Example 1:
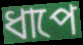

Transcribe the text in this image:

ধাপে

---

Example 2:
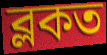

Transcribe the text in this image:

ব্লকত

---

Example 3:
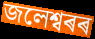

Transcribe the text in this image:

জলেশ্বৰৰ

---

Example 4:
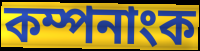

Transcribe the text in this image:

কম্পনাংক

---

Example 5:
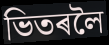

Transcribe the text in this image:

ভিতৰলৈ